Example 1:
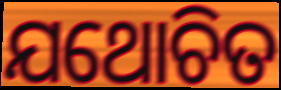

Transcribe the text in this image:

ଯଥୋଚିତ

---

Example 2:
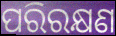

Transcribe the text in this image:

ପରିରକ୍ଷଣ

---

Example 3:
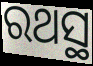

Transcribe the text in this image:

ରଥସ୍ଥ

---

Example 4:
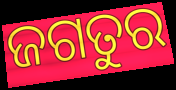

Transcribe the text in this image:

ଜଗତୁର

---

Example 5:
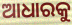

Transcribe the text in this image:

ଆଧାରକୁ